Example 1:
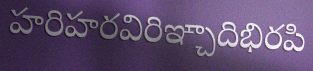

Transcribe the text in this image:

హరిహరవిరిఞ్చాదిభిరపి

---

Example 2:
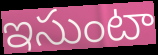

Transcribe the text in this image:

ఇసుంటా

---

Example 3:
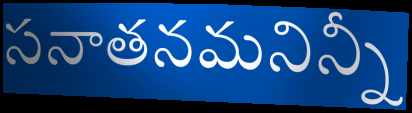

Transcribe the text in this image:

సనాతనమనిన్నీ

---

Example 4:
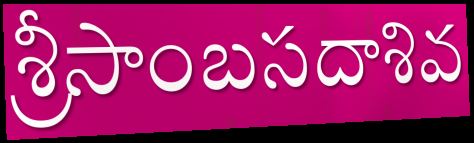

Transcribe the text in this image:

శ్రీసాంబసదాశివ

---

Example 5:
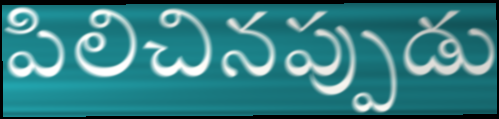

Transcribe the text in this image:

పిలిచినప్పుడు